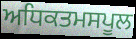
ਅਧਿਕਤਮਸਪੂਲ